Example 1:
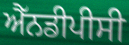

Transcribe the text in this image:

ਐੱਨਡੀਪੀਸੀ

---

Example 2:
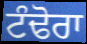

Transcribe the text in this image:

ਟੰਢੋਰਾ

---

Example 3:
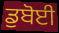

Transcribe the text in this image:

ਡੁਬੋਈ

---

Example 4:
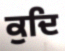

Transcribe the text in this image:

ਕੁਦਿ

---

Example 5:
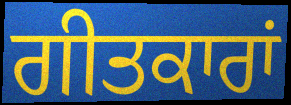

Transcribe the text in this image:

ਗੀਤਕਾਰਾਂ